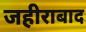
जहीराबाद